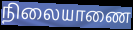
நிலையாணை